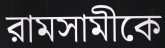
রামসামীকে